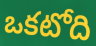
ఒకటోది